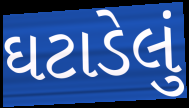
ઘટાડેલું